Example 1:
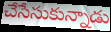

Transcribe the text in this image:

చేసేసుకున్నాడు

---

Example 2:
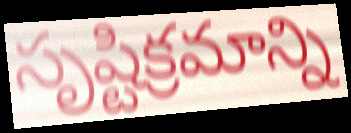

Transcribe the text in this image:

సృష్టిక్రమాన్ని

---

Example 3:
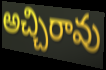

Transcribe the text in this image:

అచ్చిరావు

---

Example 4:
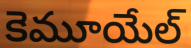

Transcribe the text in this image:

కెమూయేల్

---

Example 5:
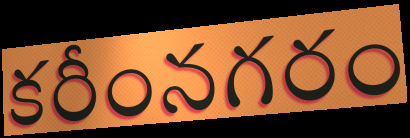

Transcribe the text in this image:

కరీంనగరం